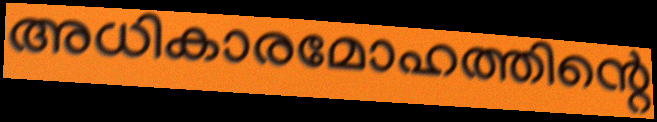
അധികാരമോഹത്തിന്റെ